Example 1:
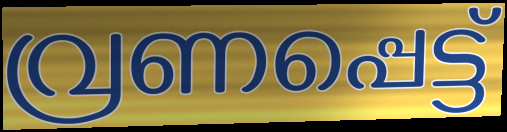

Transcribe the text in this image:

വ്രണപ്പെട്ട്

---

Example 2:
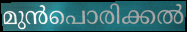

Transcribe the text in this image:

മുൻപൊരിക്കൽ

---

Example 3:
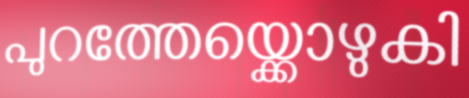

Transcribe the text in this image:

പുറത്തേയ്ക്കൊഴുകി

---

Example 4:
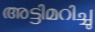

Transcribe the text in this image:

അട്ടിമറിച്ചു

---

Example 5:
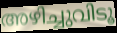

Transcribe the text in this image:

അഴിച്ചുവിടൂ